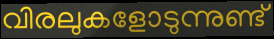
വിരലുകളോടുന്നുണ്ട്